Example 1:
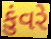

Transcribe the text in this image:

કુંવરે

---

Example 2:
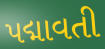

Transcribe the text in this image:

પદ્માવતી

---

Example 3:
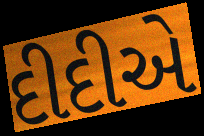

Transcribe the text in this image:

દીદીએ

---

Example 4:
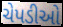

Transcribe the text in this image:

ચેપડીઓ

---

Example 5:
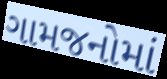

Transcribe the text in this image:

ગામજનોમાં